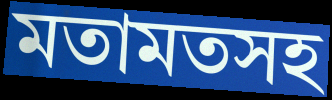
মতামতসহ